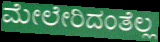
ಮೇಲೇರಿದಂತೆಲ್ಲ